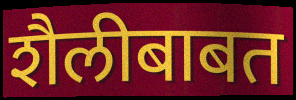
शैलीबाबत